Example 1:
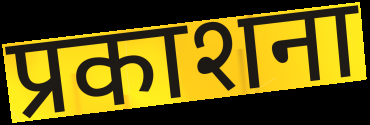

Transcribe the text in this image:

प्रकाशना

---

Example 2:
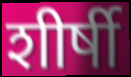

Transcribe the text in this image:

शीर्षी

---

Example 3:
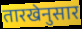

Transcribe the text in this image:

तारखेनुसार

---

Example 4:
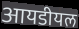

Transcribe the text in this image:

आयडीयल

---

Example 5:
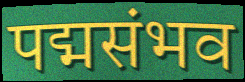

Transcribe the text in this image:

पद्मसंभव